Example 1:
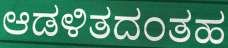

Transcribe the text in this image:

ಆಡಳಿತದಂತಹ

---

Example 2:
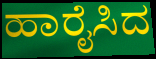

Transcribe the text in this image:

ಹಾರೈಸಿದ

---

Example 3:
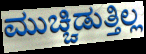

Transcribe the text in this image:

ಮುಚ್ಚಿಡುತ್ತಿಲ್ಲ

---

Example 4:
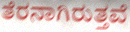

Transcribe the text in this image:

ತೆರನಾಗಿರುತ್ತವೆ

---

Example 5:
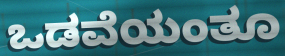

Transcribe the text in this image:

ಒಡವೆಯಂತೂ